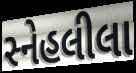
સ્નેહલીલા